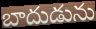
బాదుడును